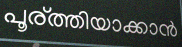
പൂര്ത്തിയാക്കാൻ